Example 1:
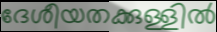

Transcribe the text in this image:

ദേശീയതക്കുള്ളിൽ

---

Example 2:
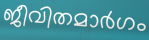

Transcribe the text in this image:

ജീവിതമാർഗം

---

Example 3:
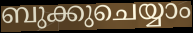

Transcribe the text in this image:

ബുക്കുചെയ്യാം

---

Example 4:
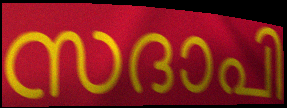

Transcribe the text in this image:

സദാപി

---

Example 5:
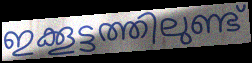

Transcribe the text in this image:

ഇക്കൂട്ടത്തിലുണ്ട്